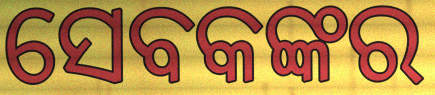
ସେବକଙ୍କର